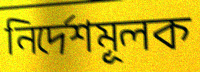
নির্দেশমূলক